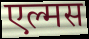
एल्मस